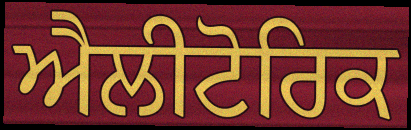
ਐਲੀਟੋਰਿਕ